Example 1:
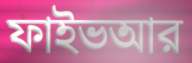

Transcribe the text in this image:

ফাইভআর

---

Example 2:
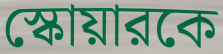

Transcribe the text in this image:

স্কোয়ারকে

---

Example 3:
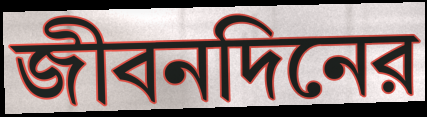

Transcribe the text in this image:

জীবনদিনের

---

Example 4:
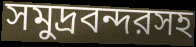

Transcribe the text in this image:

সমুদ্রবন্দরসহ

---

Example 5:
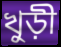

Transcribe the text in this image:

খুড়ী